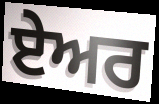
ਏੇਅਰ